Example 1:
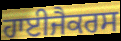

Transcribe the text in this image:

ਹਾਈਜੈਕਰਸ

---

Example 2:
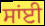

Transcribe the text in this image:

ਸਾਂਈ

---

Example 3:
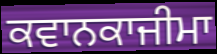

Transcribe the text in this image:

ਕਵਾਨਕਾਜੀਮਾ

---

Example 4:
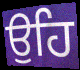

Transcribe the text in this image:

ਉਹਿ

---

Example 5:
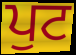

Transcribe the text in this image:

ਪੁਟ